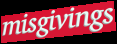
misgivings